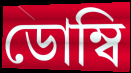
ডোম্বি